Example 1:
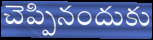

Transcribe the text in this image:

చెప్పినందుకు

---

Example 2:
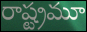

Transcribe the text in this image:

రాష్ట్రమూ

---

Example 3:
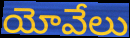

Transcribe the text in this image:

యోవేలు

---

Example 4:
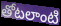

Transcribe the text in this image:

తోటలాంటి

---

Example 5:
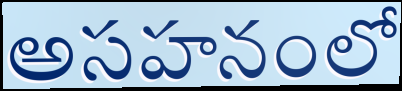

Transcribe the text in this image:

అసహనంలో